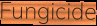
Fungicide